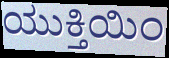
ಯುಕ್ತಿಯಿಂ